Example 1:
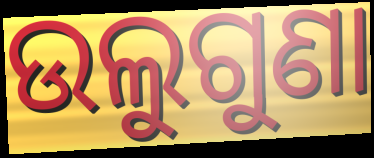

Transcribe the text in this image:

ଉଲୁଗୁଣା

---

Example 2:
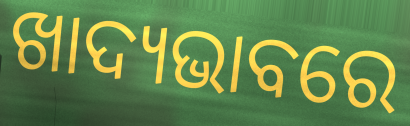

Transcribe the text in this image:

ଖାଦ୍ୟଭାବରେ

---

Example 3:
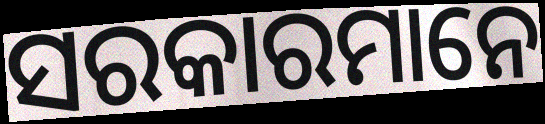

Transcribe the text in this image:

ସରକାରମାନେ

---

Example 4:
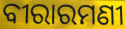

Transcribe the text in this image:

ବୀରାରମଣୀ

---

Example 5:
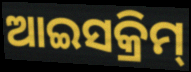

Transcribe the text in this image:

ଆଇସକ୍ରିମ୍